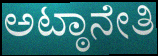
ಅಟ್ಠಾನೇತಿ